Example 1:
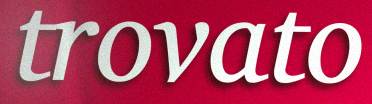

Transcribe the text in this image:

trovato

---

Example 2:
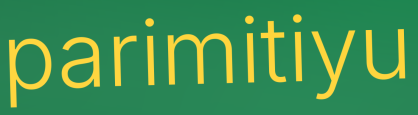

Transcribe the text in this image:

parimitiyu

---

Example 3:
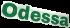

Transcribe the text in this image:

Odessa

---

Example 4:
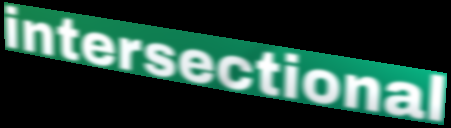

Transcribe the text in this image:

intersectional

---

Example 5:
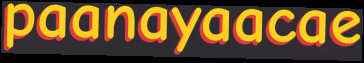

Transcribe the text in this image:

paanayaacae